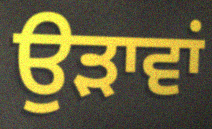
ਉੜਾਵਾਂ